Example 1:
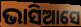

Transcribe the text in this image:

ଭାସିଆସେ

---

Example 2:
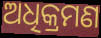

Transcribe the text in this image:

ଅଧିକ୍ରମଣ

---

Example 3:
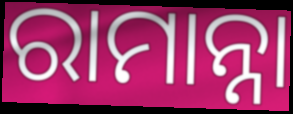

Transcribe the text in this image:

ରାମାନ୍ନା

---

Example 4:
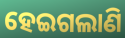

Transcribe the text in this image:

ହେଇଗଲାଣି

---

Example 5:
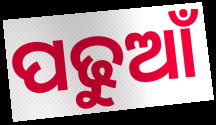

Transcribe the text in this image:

ପଢୁଆଁ